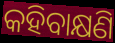
କହିବାକ୍ଷଣି